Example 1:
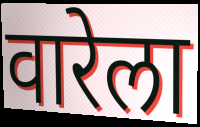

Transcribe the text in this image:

वारेला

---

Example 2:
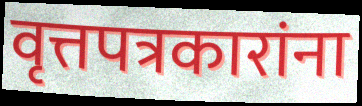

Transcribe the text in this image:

वृत्तपत्रकारांना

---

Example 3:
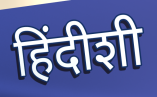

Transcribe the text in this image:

हिंदीशी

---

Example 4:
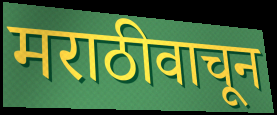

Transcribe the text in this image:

मराठीवाचून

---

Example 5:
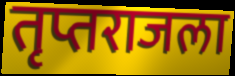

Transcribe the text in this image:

तृप्तराजला